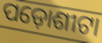
ପଡ଼ୋଶୀଟା